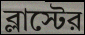
ব্লাস্টের